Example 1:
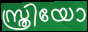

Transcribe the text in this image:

സ്ത്രിയോ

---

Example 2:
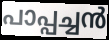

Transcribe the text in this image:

പാപ്പച്ചൻ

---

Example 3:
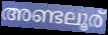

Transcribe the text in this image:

അണ്ടലൂര്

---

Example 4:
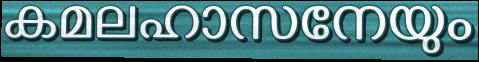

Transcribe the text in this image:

കമലഹാസനേയും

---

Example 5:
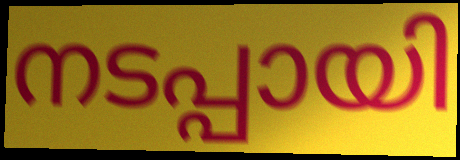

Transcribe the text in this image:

നടപ്പായി